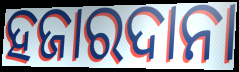
ହଜାରଦାନା